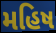
મહિષ